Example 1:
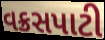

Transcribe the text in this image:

વક્રસપાટી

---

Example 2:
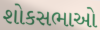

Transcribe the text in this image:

શોકસભાઓ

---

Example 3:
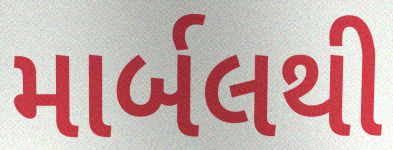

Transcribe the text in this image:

માર્બલથી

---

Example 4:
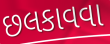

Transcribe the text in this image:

છલકાવવા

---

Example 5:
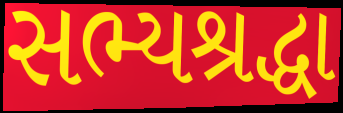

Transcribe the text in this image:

સભ્યશ્રદ્ધા